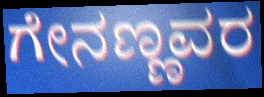
ಗೇನಣ್ಣವರ